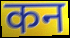
कन